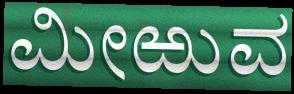
ಮೀಱುವ